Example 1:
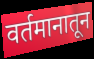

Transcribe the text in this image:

वर्तमानातून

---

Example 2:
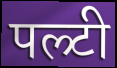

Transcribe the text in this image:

पल्टी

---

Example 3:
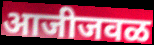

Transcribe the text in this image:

आजीजवळ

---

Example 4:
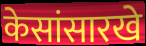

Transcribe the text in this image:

केसांसारखे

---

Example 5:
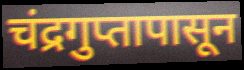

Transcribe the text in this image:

चंद्रगुप्तापासून